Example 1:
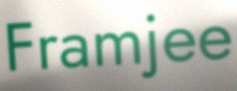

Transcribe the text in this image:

Framjee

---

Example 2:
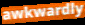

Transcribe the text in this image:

awkwardly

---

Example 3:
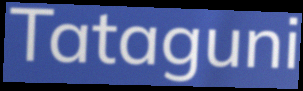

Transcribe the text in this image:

Tataguni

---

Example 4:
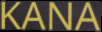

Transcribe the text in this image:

KANA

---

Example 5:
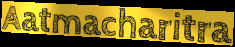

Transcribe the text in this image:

Aatmacharitra